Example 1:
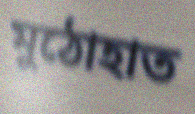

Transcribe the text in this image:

মুঠোহাত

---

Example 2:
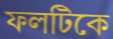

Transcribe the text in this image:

ফলটিকে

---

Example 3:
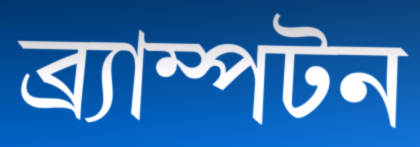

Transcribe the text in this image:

ব্র্যাম্পটন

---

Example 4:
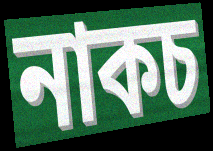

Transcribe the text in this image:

নাকচ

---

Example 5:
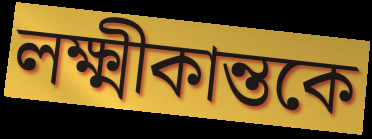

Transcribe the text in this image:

লক্ষ্মীকান্তকে